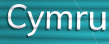
Cymru